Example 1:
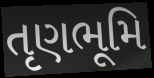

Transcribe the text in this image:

તૃણભૂમિ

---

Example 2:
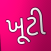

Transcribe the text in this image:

ખૂટી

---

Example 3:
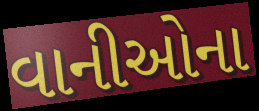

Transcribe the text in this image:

વાનીઓના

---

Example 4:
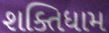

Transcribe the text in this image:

શક્તિધામ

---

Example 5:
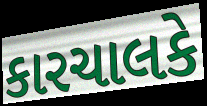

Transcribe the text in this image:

કારચાલકે